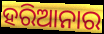
ହରିଆନାର